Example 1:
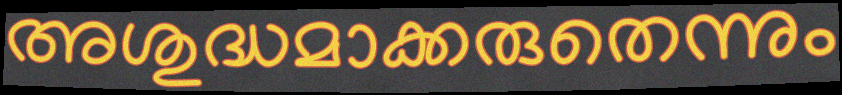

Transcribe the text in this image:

അശുദ്ധമാക്കരുതെന്നും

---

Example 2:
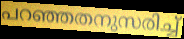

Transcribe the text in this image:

പറഞ്ഞതനുസരിച്ച്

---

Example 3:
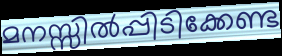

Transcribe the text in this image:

മനസ്സിൽപ്പിടിക്കേണ്ട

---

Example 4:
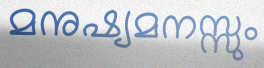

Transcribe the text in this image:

മനുഷ്യമനസ്സും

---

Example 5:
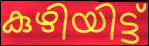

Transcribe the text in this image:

കുഴിയിട്ട്